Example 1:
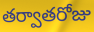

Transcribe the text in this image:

తర్వాతరోజు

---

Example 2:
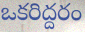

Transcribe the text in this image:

ఒకరిద్దరం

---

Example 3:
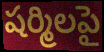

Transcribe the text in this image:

షర్మిలపై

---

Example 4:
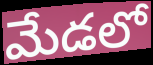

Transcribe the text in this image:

మేడలో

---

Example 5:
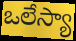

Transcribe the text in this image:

ఒలేస్యా